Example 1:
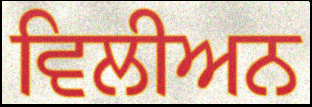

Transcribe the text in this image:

ਵਿਲੀਅਨ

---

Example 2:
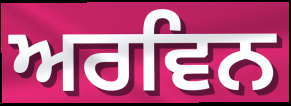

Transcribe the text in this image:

ਅਰਵਿਨ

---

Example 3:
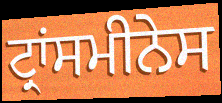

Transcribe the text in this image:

ਟ੍ਰਾਂਸਮੀਨੇਸ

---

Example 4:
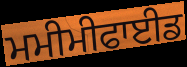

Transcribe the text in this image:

ਮਮੀਮੀਫਾਈਡ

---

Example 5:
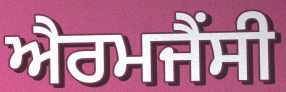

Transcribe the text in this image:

ਐਰਮਜੈਂਸੀ